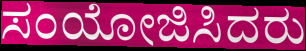
ಸಂಯೋಜಿಸಿದರು